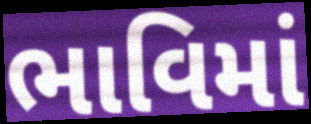
ભાવિમાં